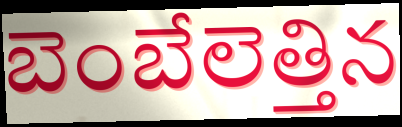
బెంబేలెత్తిన